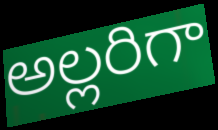
అల్లరిగా